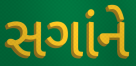
સગાંને